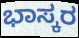
ಭಾಸ್ಕರ